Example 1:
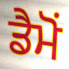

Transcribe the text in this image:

ਡੈਮੋਂ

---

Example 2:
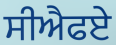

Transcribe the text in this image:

ਸੀਐਫਏ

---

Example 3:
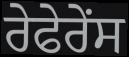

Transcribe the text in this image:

ਰੇਫੇਰੇਂਸ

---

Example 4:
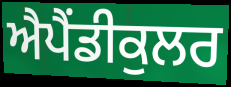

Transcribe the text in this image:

ਐਪੈਂਡੀਕੁਲਰ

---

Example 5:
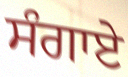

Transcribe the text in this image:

ਸੰਗਾਏ